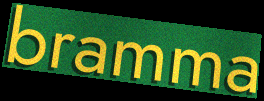
bramma